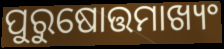
ପୁରୁଷୋତ୍ତମାଖ୍ୟଂ